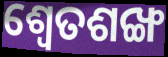
ଶ୍ୱେତଶଙ୍ଖ